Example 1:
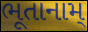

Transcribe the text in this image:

ભૂતાનામ્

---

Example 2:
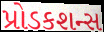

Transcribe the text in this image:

પ્રોડકશન્સ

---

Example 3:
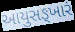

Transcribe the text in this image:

આયુસઙ્ખારં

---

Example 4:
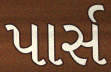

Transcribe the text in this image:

પાર્સ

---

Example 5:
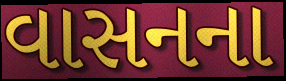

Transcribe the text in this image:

વાસનના